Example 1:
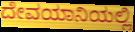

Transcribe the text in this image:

ದೇವಯಾನಿಯಲ್ಲಿ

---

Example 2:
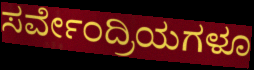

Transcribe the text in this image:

ಸರ್ವೇಂದ್ರಿಯಗಳೂ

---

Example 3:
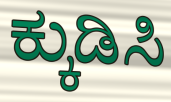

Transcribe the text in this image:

ಕ್ಕುಡಿಸಿ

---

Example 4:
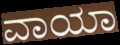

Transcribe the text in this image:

ವಾಯಾ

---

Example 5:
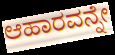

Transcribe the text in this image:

ಆಹಾರವನ್ನೇ